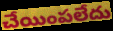
చేయింపలేదు